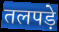
तलपड़े